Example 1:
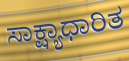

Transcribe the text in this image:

ಸಾಕ್ಷ್ಯಾಧಾರಿತ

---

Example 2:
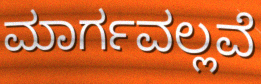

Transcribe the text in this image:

ಮಾರ್ಗವಲ್ಲವೆ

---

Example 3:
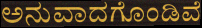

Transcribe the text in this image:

ಅನುವಾದಗೊಂಡಿವೆ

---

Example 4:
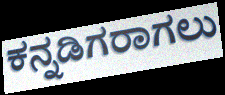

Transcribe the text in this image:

ಕನ್ನಡಿಗರಾಗಲು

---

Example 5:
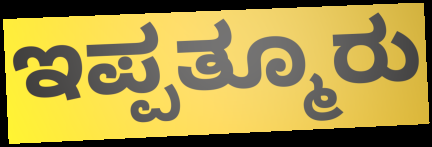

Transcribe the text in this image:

ಇಪ್ಪತ್ಮೂರು